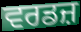
ਵਰਡਜ਼